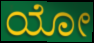
ಯೋ